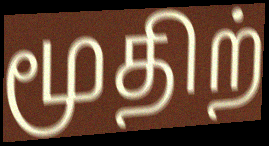
மூதிற்